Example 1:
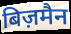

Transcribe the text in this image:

बिज़मैन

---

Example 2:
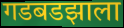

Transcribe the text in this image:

गडबडझाला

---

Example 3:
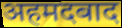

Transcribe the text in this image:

अहमदबाद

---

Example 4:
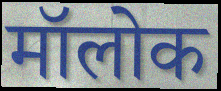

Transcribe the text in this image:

मॉलोक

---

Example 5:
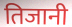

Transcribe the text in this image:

तिजानी